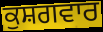
ਕੁਸ਼ਗਵਾਰ